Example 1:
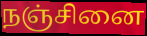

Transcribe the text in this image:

நஞ்சினை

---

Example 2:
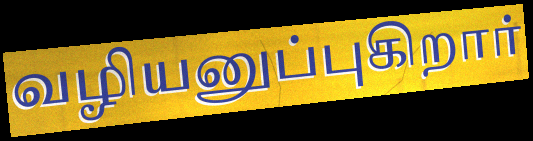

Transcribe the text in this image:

வழியனுப்புகிறார்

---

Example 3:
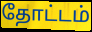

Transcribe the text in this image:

தோட்டம்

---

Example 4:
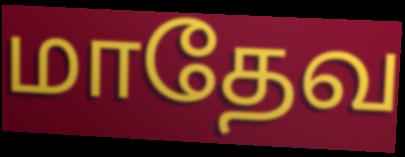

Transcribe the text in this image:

மாதேவ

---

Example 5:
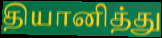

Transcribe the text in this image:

தியானித்து